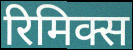
रिमिक्स